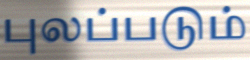
புலப்படும்